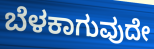
ಬೆಳಕಾಗುವುದೇ